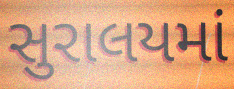
સુરાલયમાં